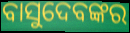
ବାସୁଦେବଙ୍କର